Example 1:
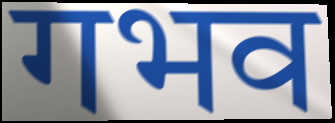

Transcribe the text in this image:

गभव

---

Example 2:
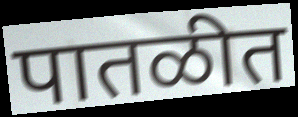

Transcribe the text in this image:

पातळीत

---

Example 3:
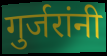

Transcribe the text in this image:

गुर्जरांनी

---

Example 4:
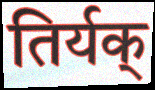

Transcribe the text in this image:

तिर्यक्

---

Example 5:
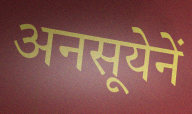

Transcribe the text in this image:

अनसूयेनें